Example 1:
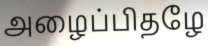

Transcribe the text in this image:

அழைப்பிதழே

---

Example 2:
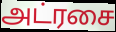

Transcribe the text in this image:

அட்ரசை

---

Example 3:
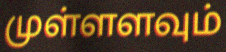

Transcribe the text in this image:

முள்ளளவும்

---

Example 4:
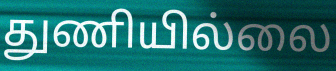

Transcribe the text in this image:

துணியில்லை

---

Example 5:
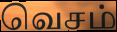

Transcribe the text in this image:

வெசம்